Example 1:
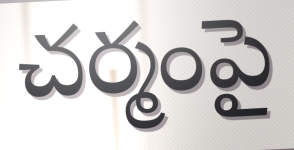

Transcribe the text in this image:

చర్మంపై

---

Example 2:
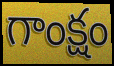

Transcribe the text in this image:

గాంక్షం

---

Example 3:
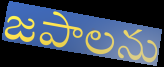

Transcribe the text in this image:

జపాలను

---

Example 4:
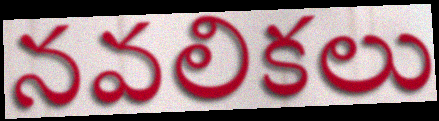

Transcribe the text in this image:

నవలికలు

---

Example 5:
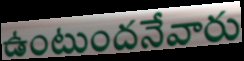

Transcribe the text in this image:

ఉంటుందనేవారు